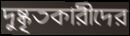
দুষ্কৃতকারীদের